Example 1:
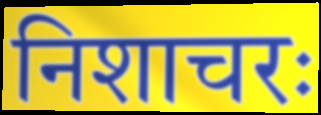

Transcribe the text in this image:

निशाचरः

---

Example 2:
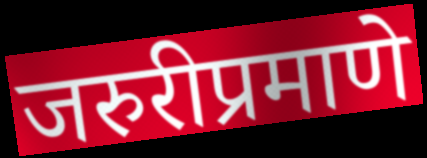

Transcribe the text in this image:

जरुरीप्रमाणे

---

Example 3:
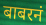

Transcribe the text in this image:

बाबरनं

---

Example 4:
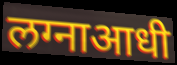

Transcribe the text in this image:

लग्नाआधी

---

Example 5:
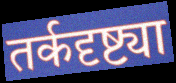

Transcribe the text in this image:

तर्कदृष्ट्या